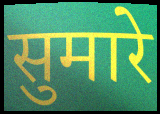
सुमारे